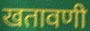
खतावणी